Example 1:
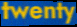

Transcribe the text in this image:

twenty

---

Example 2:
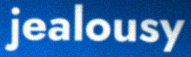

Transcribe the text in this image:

jealousy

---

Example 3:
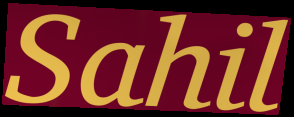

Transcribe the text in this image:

Sahil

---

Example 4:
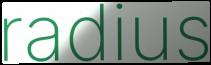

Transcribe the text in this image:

radius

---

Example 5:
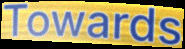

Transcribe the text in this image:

Towards